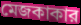
মেজকাকার